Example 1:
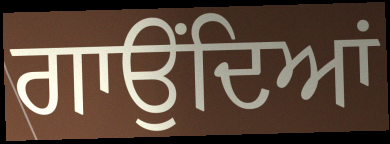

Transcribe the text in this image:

ਗਾਉਂਦਿਆਂ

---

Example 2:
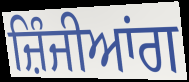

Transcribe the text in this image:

ਜ਼ਿੰਜੀਆਂਗ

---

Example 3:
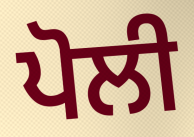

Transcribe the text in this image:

ਪੋਲੀ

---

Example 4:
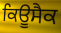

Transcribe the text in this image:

ਕਿਊਸੈਕ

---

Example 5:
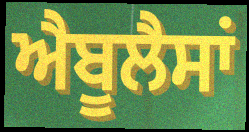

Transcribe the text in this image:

ਐਬੂਲੈਸਾਂ